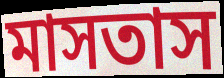
মাসতাস